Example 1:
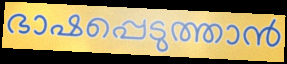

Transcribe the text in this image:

ഭാഷപ്പെടുത്താൻ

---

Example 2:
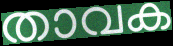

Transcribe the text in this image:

താവക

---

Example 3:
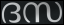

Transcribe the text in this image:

ദസ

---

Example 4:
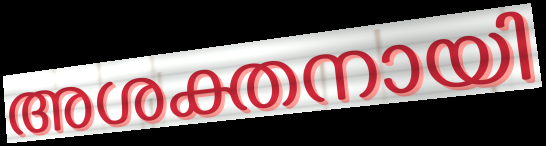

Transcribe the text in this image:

അശക്തനായി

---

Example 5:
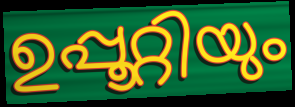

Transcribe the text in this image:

ഉപ്പൂറ്റിയും